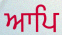
ਆਪਿ